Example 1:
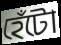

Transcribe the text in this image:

হেঁটো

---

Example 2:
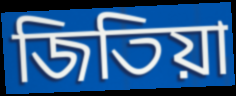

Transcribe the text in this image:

জিতিয়া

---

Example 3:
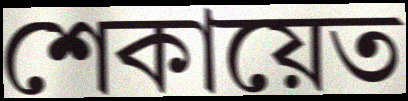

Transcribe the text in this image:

শেকায়েত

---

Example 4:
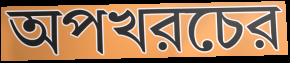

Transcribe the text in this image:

অপখরচের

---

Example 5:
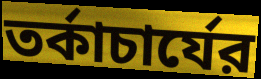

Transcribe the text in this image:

তর্কাচার্যের